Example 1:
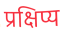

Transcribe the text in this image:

प्रक्षिप्य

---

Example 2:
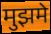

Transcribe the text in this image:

मुझमे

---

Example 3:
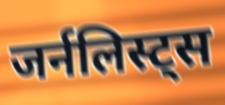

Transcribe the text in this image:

जर्नलिस्ट्स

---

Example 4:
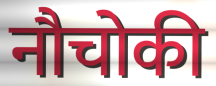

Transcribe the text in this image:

नौचोकी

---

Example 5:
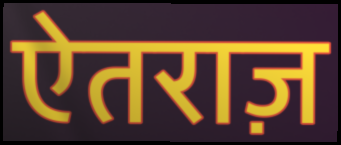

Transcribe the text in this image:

ऐतराज़